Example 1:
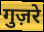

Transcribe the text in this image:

गुज़रे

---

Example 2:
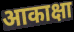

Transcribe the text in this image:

आकाक्षा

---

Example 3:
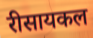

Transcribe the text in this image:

रीसायकल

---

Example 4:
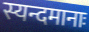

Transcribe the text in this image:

स्यन्दमानाः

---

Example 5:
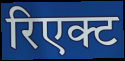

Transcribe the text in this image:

रिएक्ट